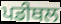
ਪਡੀਥਲ